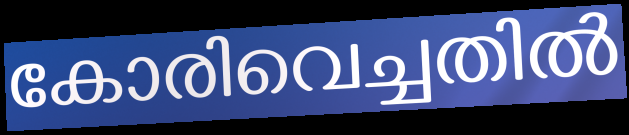
കോരിവെച്ചതിൽ